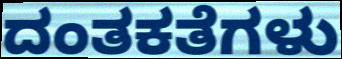
ದಂತಕತೆಗಳು